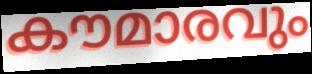
കൗമാരവും